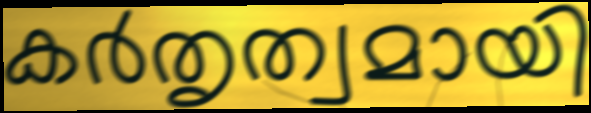
കർതൃത്വമായി